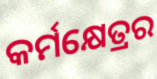
କର୍ମକ୍ଷେତ୍ରର